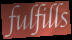
fulfills